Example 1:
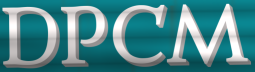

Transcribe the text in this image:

DPCM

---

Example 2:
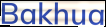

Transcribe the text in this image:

Bakhua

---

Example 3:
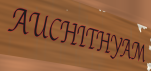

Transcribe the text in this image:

AUCHITHYAM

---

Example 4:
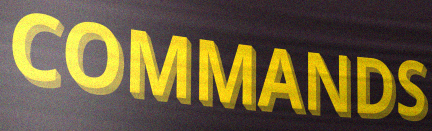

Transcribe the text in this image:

COMMANDS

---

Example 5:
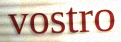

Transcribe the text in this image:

vostro